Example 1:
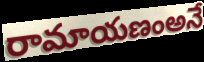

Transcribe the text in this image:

రామాయణంఅనే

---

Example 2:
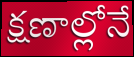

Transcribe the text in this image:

క్షణాల్లోనే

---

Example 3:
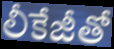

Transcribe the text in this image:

లీకేజీతో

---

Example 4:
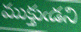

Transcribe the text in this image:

ముక్తుఁడని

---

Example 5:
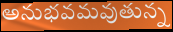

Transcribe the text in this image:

అనుభవమవుతున్న